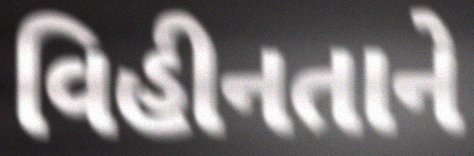
વિહીનતાને